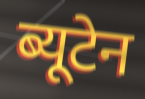
ब्यूटेन